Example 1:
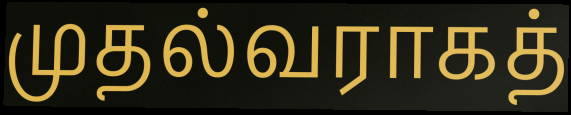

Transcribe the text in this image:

முதல்வராகத்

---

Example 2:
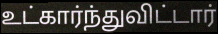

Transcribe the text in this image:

உட்கார்ந்துவிட்டார்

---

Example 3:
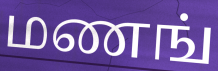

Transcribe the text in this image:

மணங்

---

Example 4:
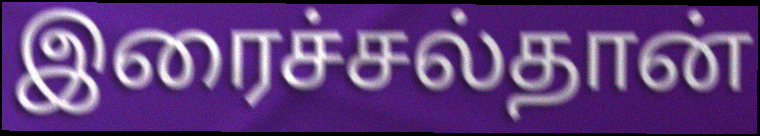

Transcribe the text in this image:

இரைச்சல்தான்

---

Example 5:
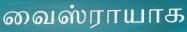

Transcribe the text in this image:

வைஸ்ராயாக